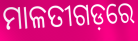
ମାଳତୀଗଡ଼ରେ